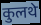
कुलथे